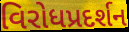
વિરોધપ્રદર્શન